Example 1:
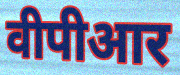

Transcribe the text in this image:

वीपीआर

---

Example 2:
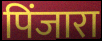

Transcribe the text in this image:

पिंजारा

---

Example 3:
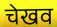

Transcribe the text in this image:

चेखव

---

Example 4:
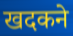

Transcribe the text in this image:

खदकने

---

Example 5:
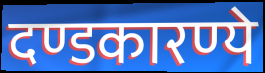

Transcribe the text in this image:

दण्डकारण्ये